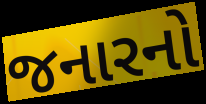
જનારનો